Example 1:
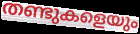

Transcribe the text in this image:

തണ്ടുകളെയും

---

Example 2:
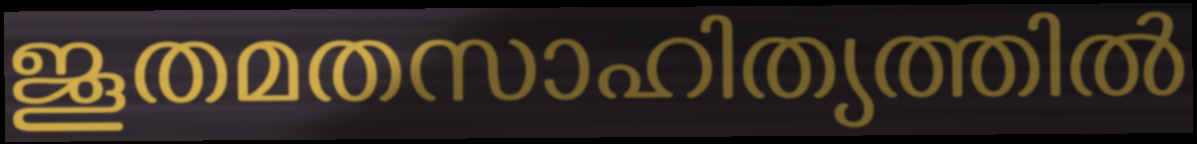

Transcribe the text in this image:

ജൂതമതസാഹിത്യത്തിൽ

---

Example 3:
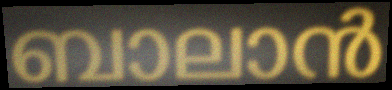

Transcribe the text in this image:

ബാലാൻ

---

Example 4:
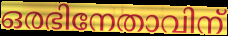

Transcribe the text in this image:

ഒരഭിനേതാവിന്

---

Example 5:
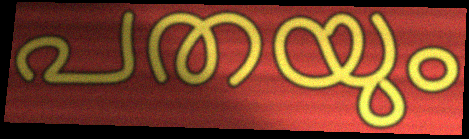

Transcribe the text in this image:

പതയും